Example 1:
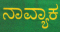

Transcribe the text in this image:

ನಾವ್ಯಾಕ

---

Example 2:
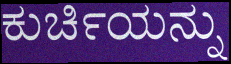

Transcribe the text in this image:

ಕುರ್ಚಿಯನ್ನು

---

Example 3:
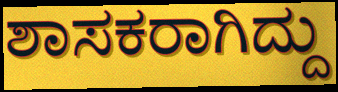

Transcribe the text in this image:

ಶಾಸಕರಾಗಿದ್ದು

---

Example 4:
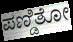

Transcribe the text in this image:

ಪಣ್ಡಿತೋ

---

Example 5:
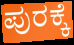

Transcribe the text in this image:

ಪುರಕ್ಕೆ